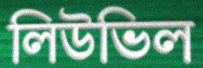
লিউভিল